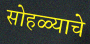
सोहळ्याचे